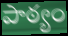
పాఠ్యం